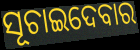
ସୂଚାଇଦେବାର